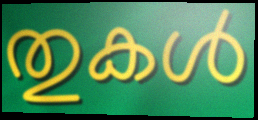
തുകൾ